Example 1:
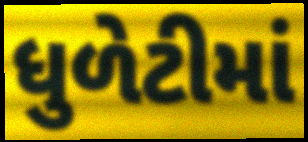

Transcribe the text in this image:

ધુળેટીમાં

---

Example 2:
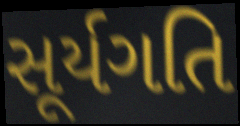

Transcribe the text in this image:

સૂર્યગતિ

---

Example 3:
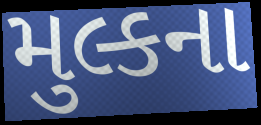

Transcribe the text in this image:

મુલ્કના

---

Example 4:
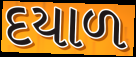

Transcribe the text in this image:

દયાળ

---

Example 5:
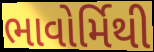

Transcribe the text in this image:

ભાવોર્મિથી